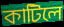
কাটিলে